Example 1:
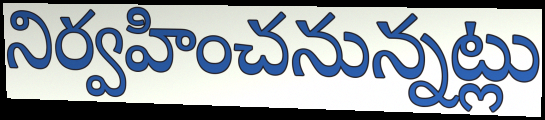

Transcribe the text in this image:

నిర్వహించనున్నట్లు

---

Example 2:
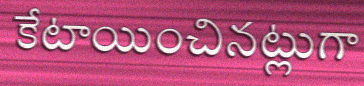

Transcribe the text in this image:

కేటాయించినట్లుగా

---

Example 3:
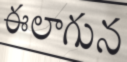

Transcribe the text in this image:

ఈలాగున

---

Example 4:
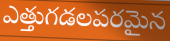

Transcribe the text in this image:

ఎత్తుగడలపరమైన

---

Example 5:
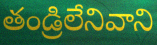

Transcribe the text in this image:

తండ్రిలేనివాని